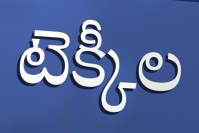
టెక్కీల